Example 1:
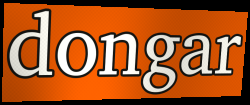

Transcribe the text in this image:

dongar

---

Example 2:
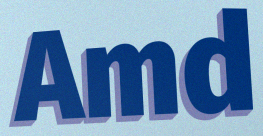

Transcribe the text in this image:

Amd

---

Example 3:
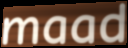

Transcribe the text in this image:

maad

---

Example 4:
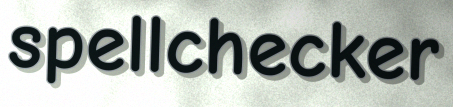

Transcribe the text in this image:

spellchecker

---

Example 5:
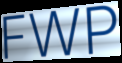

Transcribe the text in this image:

FWP